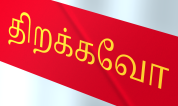
திறக்கவோ